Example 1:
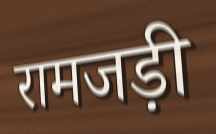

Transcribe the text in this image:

रामजड़ी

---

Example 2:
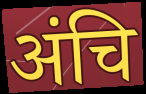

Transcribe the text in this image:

अंचि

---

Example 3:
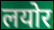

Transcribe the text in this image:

लयोर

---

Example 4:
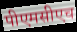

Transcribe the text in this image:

पीएमसीएच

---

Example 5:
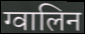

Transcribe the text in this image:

ग्वालिन